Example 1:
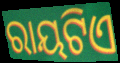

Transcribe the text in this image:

ରାୟଟିଏ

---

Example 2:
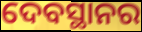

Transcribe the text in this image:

ଦେବସ୍ଥାନର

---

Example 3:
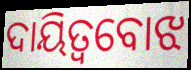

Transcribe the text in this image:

ଦାୟିତ୍ୱବୋଝ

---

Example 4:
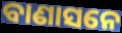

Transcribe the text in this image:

ବାଣାସନେ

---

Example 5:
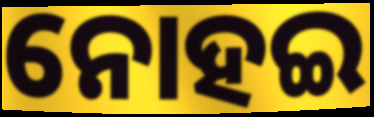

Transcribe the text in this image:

ନୋହଇ